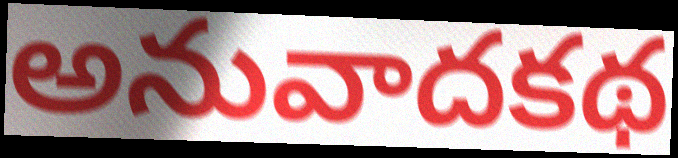
అనువాదకథ